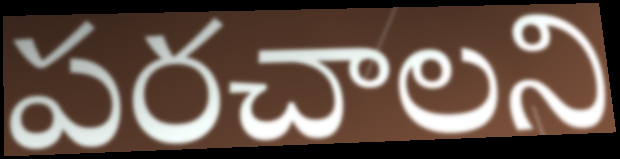
పరచాలని